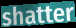
shatter